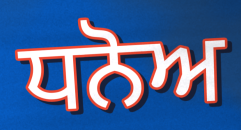
ਧਨੋਅ